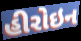
હીરોઇન